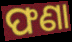
ଫଣା